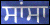
ਸਾਂਸਾ